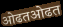
ओढतओढत